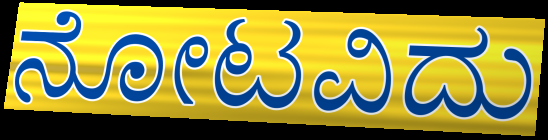
ನೋಟವಿದು